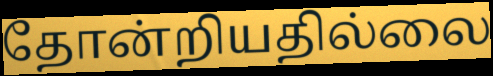
தோன்றியதில்லை